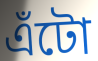
এঁটো